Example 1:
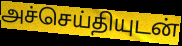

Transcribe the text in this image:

அச்செய்தியுடன்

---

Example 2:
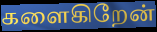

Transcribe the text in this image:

களைகிறேன்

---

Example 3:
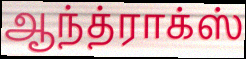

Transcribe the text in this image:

ஆந்த்ராக்ஸ்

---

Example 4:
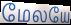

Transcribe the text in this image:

மேலயே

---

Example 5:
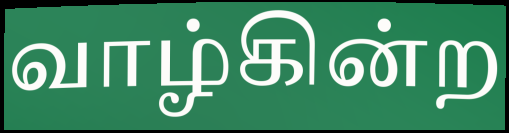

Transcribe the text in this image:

வாழ்கின்ற